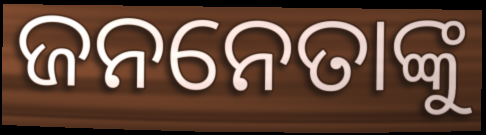
ଜନନେତାଙ୍କୁ